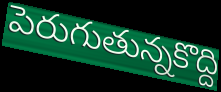
పెరుగుతున్నకొద్ది